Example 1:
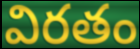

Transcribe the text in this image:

విరతం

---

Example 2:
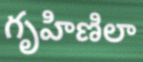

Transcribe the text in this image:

గృహిణిలా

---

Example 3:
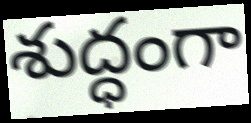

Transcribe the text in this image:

శుద్ధంగా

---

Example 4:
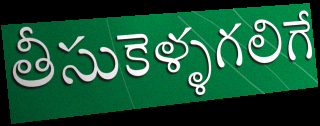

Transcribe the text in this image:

తీసుకెళ్ళగలిగే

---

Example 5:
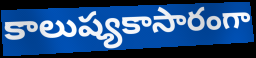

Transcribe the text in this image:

కాలుష్యకాసారంగా